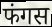
फंगस